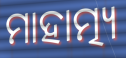
ମାହାତ୍ମ୍ୟ